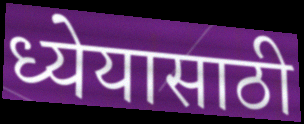
ध्येयासाठी